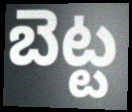
బెట్ట